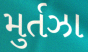
મુર્તઝા